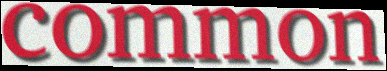
common